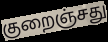
குறைஞ்சது